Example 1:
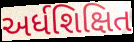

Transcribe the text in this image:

અર્ધશિક્ષિત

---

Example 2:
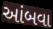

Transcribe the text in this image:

આંબવા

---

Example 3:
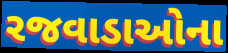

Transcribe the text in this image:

રજવાડાઓના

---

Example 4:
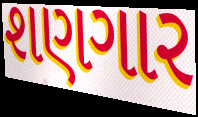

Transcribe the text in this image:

શણગાર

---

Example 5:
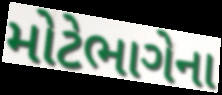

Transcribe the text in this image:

મોટેભાગેના